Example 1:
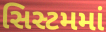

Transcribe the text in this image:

સિસ્ટમમાં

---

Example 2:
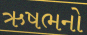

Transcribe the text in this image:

ઋષભનો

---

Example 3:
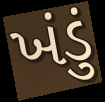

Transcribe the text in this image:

ખંડું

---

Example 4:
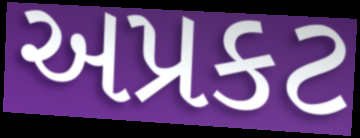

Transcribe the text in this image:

અપ્રકટ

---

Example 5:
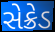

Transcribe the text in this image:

સેક્રેડ